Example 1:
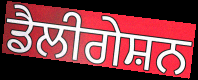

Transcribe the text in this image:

ਡੈਲੀਗੇਸ਼ਨ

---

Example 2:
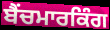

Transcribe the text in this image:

ਬੈਂਚਮਾਰਕਿੰਗ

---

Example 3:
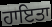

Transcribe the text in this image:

ਹਾਇਤਾ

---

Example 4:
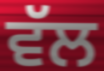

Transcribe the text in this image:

ਵੱਲ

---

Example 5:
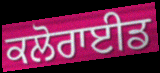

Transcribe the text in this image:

ਕਲੋਰਾਈਡ